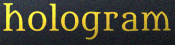
hologram